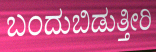
ಬಂದುಬಿಡುತ್ತೀರಿ